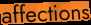
affections